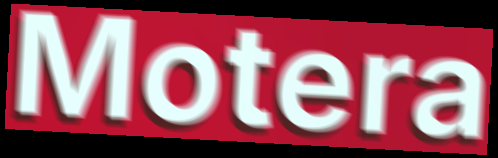
Motera